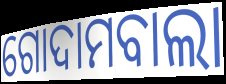
ଗୋଦାମବାଲା